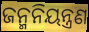
ଜନ୍ମନିୟନ୍ତ୍ରଣ